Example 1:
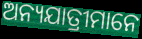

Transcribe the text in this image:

ଅନ୍ୟଯାତ୍ରୀମାନେ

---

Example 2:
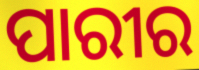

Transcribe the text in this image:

ପାରୀର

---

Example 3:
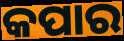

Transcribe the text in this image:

କପାର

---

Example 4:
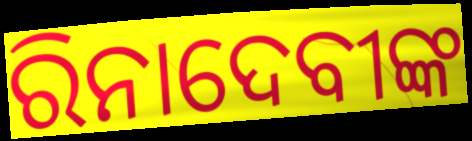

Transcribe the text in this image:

ରିନାଦେବୀଙ୍କ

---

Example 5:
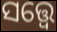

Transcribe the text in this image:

ସତ୍ତ୍ବେ